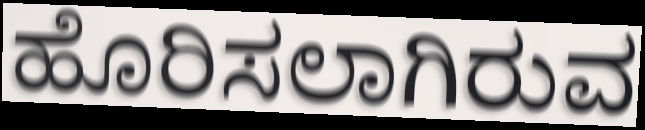
ಹೊರಿಸಲಾಗಿರುವ